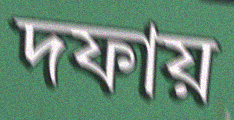
দফায়